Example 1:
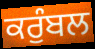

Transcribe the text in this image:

ਕਰੁੰਬਲ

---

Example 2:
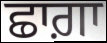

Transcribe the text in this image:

ਛਾਗ਼ਾ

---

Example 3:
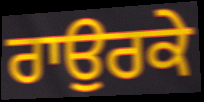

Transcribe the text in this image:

ਰਾਉਰਕੇ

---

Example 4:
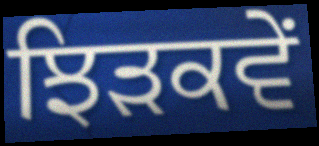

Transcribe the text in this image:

ਝਿੜਕਵੇਂ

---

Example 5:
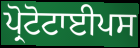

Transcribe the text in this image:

ਪ੍ਰੋਟੋਟਾਈਪਸ